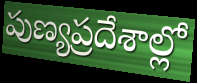
పుణ్యప్రదేశాల్లో